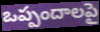
ఒప్పందాలపై